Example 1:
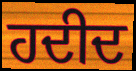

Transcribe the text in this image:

ਹਦੀਦ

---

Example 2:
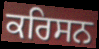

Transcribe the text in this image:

ਕਰਿਸਨ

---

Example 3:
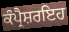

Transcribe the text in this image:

ਕੰਪ੍ਰੈਸ਼ਰਇਹ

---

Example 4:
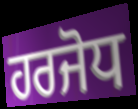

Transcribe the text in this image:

ਹਰਜੋਧ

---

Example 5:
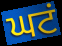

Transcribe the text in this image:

ਘਟਂ